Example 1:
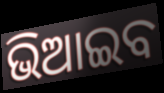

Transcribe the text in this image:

ଭିଆଇବ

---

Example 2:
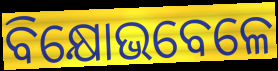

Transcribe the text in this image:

ବିକ୍ଷୋଭବେଳେ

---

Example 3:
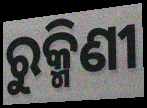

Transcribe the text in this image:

ରୁକ୍ମିଣୀ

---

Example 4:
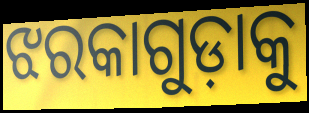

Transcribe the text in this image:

ଝରକାଗୁଡ଼ାକୁ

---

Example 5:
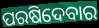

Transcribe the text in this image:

ପରଷିଦେବାର